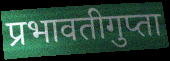
प्रभावतीगुप्ता